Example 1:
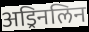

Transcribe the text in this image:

अड्रिनलिन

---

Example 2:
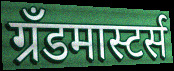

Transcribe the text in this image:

ग्रँडमास्टर्स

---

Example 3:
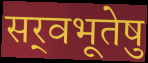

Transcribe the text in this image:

सर्वभूतेषु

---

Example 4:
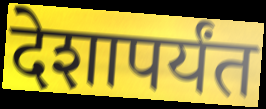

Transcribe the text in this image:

देशापर्यंत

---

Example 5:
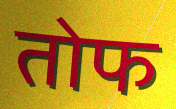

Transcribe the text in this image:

तोफ